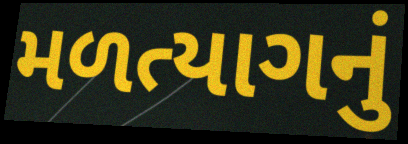
મળત્યાગનું